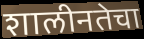
शालीनतेचा